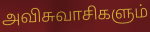
அவிசுவாசிகளும்